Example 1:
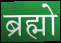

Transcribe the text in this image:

ब्रह्मो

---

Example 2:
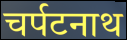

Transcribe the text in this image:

चर्पटनाथ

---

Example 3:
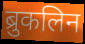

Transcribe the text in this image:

ब्रुकलिन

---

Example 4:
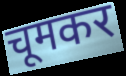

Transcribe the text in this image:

चूमकर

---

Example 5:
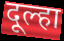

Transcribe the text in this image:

दूल्हा